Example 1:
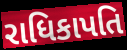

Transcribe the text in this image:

રાધિકાપતિ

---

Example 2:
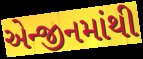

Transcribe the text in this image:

એન્જીનમાંથી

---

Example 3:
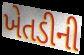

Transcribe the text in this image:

ખેતડીની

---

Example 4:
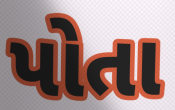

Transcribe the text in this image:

પોતા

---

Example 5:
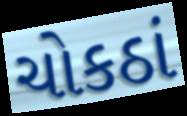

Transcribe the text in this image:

ચોકઠાં